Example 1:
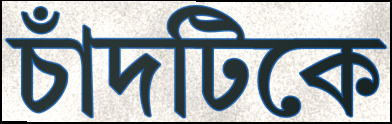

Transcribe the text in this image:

চাঁদটিকে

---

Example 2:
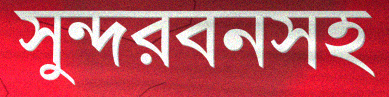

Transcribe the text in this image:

সুন্দরবনসহ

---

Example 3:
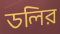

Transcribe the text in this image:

ডলির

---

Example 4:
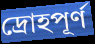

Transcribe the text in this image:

দ্রোহপূর্ণ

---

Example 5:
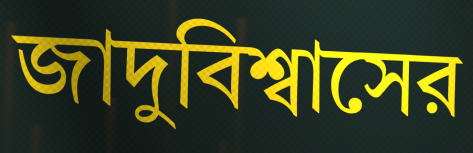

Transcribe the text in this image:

জাদুবিশ্বাসের